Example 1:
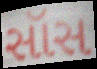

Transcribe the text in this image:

સૉસ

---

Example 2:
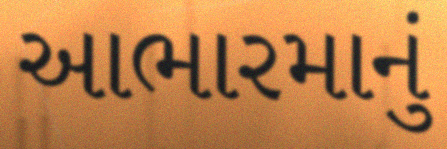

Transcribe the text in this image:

આભારમાનું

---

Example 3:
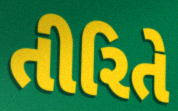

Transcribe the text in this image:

તીરિતે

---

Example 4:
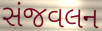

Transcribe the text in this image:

સંજવલન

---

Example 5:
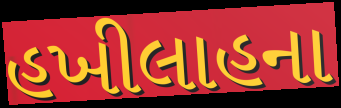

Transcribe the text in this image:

હખીલાહના